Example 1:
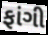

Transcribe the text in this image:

ફાંગી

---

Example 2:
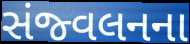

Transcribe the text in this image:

સંજ્વલનના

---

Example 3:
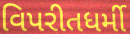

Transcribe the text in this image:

વિપરીતધર્મી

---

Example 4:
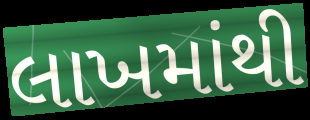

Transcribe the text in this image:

લાખમાંથી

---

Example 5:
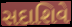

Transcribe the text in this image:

સદાશિવે